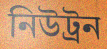
নিউট্রন